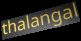
thalangal